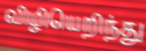
விழியெறிந்து